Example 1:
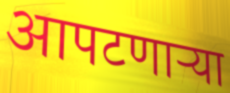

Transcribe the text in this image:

आपटणाऱ्या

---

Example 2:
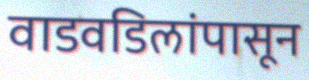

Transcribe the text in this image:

वाडवडिलांपासून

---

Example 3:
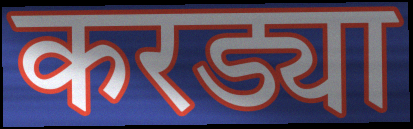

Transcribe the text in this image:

करड्या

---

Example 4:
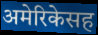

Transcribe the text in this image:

अमेरिकेसह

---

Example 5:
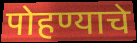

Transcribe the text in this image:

पोहण्याचे